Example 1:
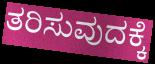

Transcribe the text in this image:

ತರಿಸುವುದಕ್ಕೆ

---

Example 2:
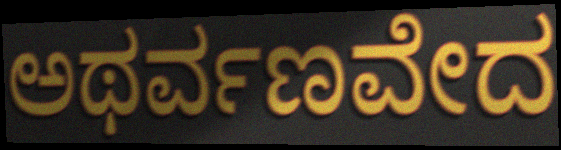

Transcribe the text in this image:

ಅಥರ್ವಣವೇದ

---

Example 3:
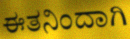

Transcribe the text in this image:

ಈತನಿಂದಾಗಿ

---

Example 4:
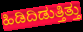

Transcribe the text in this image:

ಹಿಡಿದಿಡುತ್ತಿತ್ತು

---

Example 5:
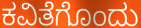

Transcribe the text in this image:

ಕವಿತೆಗೊಂದು